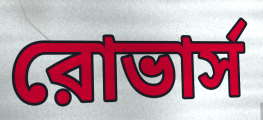
রোভার্স